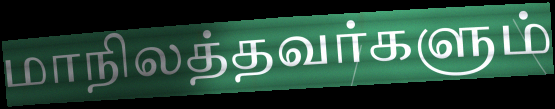
மாநிலத்தவர்களும்